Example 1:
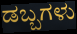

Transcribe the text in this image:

ಡಬ್ಬಗಳು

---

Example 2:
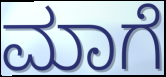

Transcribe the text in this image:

ಮಾಗೆ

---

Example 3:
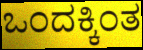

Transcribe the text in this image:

ಒಂದಕ್ಕಿಂತ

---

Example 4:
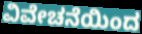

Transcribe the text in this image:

ವಿವೇಚನೆಯಿಂದ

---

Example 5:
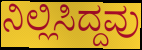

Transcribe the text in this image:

ನಿಲ್ಲಿಸಿದ್ದವು